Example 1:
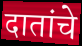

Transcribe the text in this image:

दातांचे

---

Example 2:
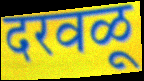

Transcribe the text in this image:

दरवळू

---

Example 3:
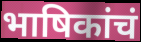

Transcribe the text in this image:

भाषिकांचं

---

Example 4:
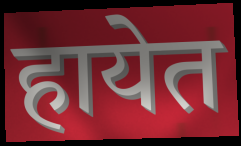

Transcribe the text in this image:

हायेत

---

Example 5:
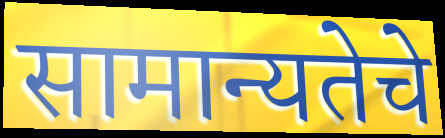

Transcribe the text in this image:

सामान्यतेचे